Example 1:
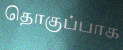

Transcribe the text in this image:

தொகுப்பாக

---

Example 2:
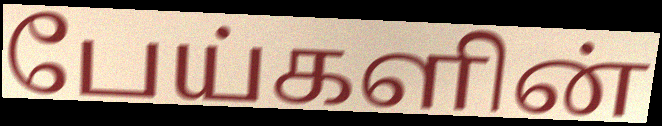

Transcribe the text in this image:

பேய்களின்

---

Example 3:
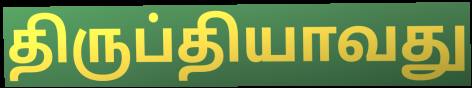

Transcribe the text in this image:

திருப்தியாவது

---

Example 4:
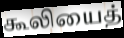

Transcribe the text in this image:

கூலியைத்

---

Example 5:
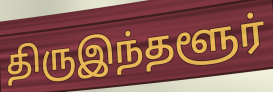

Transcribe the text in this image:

திருஇந்தளூர்